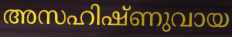
അസഹിഷ്ണുവായ